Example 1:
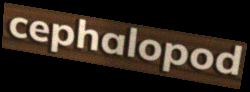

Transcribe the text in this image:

cephalopod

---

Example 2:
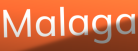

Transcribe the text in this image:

Malaga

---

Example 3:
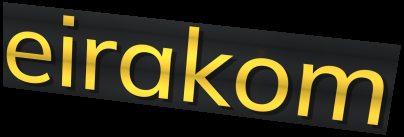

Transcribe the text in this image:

eirakom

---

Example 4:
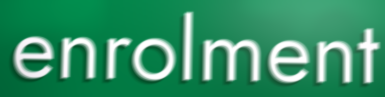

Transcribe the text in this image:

enrolment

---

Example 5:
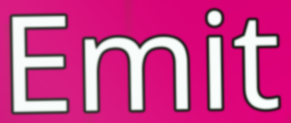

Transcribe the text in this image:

Emit